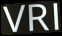
VRI